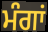
ਮੰਗਾਂ